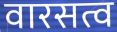
वारसत्व